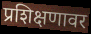
प्रशिक्षणावर